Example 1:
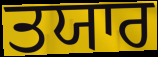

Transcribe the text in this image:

ਤਯਾਰ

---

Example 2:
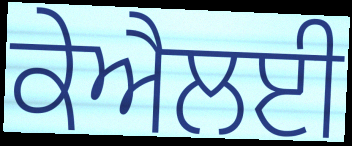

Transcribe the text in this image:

ਕੇਐਲਈ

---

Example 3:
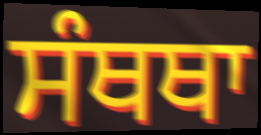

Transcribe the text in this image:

ਸੰਥਥਾ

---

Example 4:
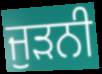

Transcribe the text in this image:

ਜੁੜਨੀ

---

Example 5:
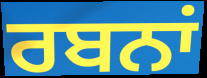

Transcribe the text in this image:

ਰਬਨਾਂ